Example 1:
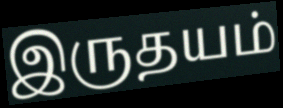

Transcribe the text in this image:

இருதயம்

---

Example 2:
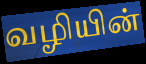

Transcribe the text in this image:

வழியின்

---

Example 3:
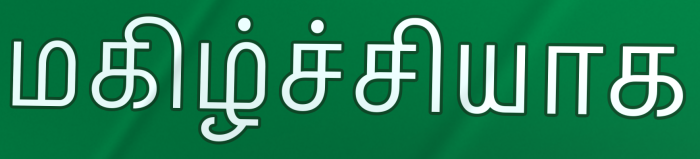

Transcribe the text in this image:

மகிழ்ச்சியாக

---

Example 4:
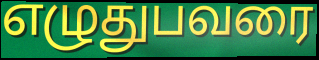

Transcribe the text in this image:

எழுதுபவரை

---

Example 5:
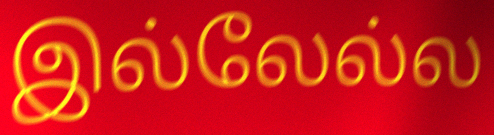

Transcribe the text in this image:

இல்லேல்ல